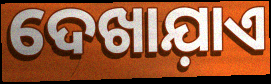
ଦେଖାଯ଼ାଏ